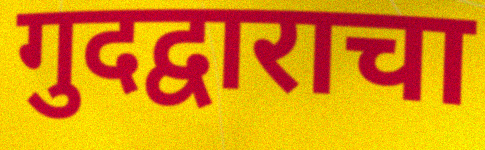
गुदद्वाराचा